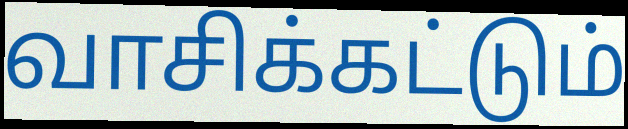
வாசிக்கட்டும்